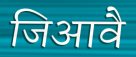
जिआवै